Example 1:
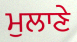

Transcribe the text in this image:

ਮੁਲਾਣੇ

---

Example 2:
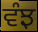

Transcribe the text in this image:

ਵੰਝ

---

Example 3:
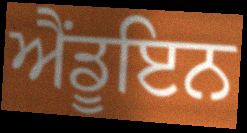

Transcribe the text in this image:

ਐਂਡੂਇਨ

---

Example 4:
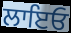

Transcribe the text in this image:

ਲਾਇਓ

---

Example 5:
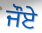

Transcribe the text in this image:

ਜੌਏ